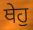
ਥੇਹੁ